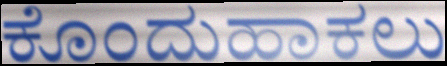
ಕೊಂದುಹಾಕಲು